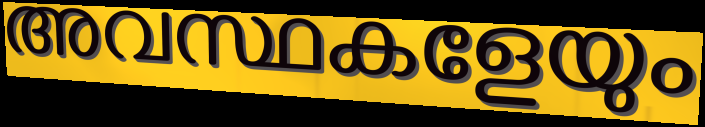
അവസ്ഥകളേയും